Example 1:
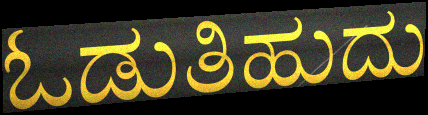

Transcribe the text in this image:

ಓಡುತಿಹುದು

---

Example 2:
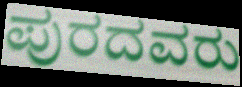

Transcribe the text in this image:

ಪುರದವರು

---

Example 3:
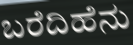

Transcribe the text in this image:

ಬರೆದಿಹೆನು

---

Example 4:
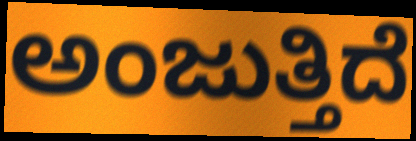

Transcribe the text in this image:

ಅಂಜುತ್ತಿದೆ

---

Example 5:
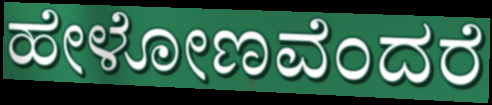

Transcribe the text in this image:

ಹೇಳೋಣವೆಂದರೆ